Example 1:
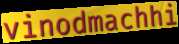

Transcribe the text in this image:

vinodmachhi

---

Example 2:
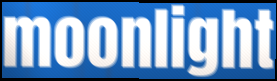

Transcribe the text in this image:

moonlight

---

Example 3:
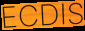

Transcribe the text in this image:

ECDIS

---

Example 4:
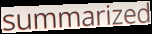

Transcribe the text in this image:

summarized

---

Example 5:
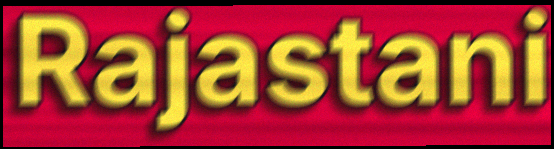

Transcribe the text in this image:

Rajastani